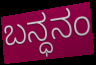
ಬನ್ಧನಂ